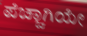
ಪೆಚ್ಚಾಗಿಯೇ